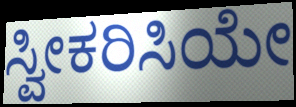
ಸ್ವೀಕರಿಸಿಯೇ